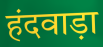
हंदवाड़ा